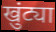
खुंट्या